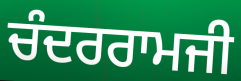
ਚੰਦਰਰਾਮਜੀ